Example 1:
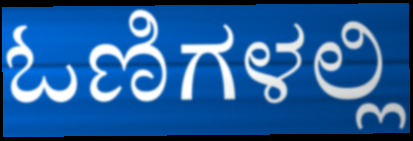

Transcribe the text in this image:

ಓಣಿಗಳಲ್ಲಿ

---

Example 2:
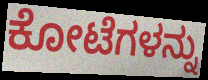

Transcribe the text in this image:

ಕೋಟೆಗಳನ್ನು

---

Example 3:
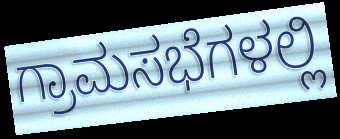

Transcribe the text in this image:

ಗ್ರಾಮಸಭೆಗಳಲ್ಲಿ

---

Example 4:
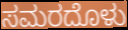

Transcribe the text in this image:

ಸಮರದೊಳು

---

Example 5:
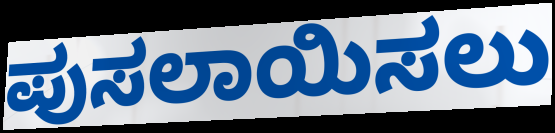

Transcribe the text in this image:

ಪುಸಲಾಯಿಸಲು